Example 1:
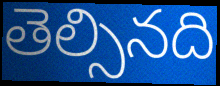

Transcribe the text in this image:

తెల్సినది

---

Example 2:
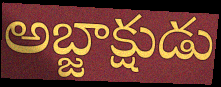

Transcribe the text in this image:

అబ్జాక్షుడు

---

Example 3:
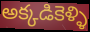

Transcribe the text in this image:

అక్కడికెళ్ళి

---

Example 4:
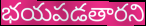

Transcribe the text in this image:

భయపడతారని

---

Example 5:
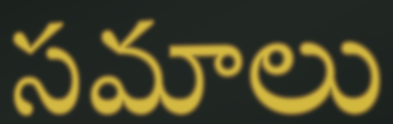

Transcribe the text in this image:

సమాలు